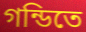
গন্ডিতে